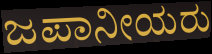
ಜಪಾನೀಯರು